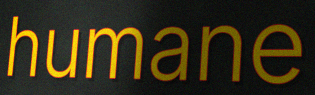
humane